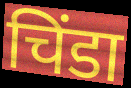
चिंडा